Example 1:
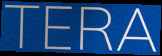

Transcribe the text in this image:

TERA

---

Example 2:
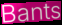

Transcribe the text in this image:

Bants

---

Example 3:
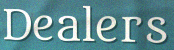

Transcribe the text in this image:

Dealers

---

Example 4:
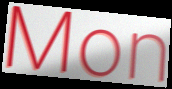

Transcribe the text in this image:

Mon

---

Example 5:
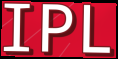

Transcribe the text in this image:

IPL